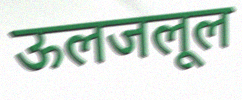
ऊलजलूल